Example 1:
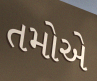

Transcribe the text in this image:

તમોએ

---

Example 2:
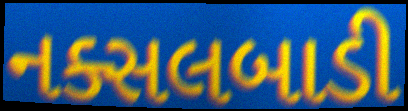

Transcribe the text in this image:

નક્સલબાડી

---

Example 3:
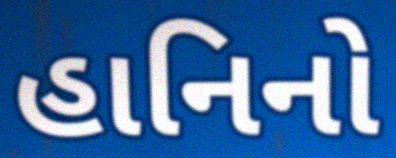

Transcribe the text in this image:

હાનિનો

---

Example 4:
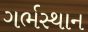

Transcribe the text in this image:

ગર્ભસ્થાન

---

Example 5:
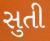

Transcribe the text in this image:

સુતી